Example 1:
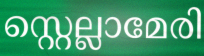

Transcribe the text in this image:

സ്റ്റെല്ലാമേരി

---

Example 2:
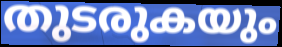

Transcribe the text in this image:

തുടരുകയും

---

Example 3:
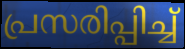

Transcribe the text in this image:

പ്രസരിപ്പിച്ച്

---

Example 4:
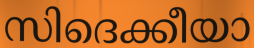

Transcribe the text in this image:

സിദെക്കീയാ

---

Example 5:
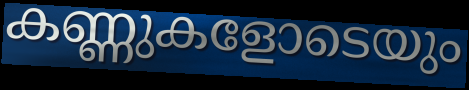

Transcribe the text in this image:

കണ്ണുകളോടെയും